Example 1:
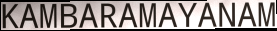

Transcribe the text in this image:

KAMBARAMAYANAM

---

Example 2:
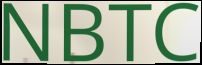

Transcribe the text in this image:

NBTC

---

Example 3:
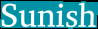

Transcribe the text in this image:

Sunish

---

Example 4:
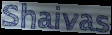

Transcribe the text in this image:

Shaivas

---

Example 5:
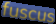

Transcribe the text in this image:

fuscus